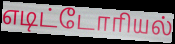
எடிட்டோரியல்